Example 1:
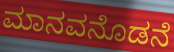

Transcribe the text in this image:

ಮಾನವನೊಡನೆ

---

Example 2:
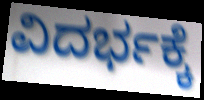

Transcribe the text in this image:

ವಿದರ್ಭಕ್ಕೆ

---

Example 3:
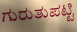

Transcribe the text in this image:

ಗುರುತುಪಟ್ಟಿ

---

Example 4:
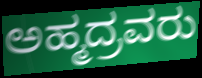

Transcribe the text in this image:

ಅಹ್ಮದ್ರವರು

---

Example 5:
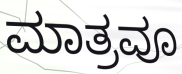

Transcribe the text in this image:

ಮಾತ್ರವೂ